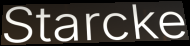
Starcke